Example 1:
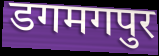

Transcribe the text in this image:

डगमगपुर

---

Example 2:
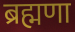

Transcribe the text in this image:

ब्रह्मणा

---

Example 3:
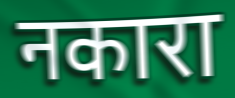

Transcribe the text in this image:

नकारा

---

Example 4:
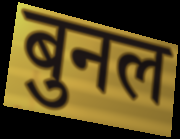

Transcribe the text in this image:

बुनल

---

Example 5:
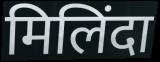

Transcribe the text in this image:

मिलिंदा